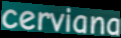
cerviana